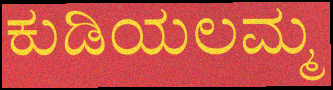
ಕುಡಿಯಲಮ್ಮ